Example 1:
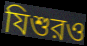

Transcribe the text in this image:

যিশুরও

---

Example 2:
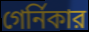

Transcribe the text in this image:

গের্নিকার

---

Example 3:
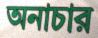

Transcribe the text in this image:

অনাচার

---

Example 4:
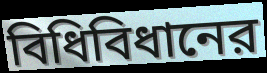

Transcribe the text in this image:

বিধিবিধানের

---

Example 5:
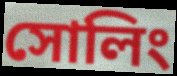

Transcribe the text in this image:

সোলিং